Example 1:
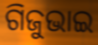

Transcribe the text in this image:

ଗିଜୁଭାଇ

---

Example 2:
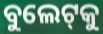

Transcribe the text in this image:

ବୁଲେଟ୍‌କୁ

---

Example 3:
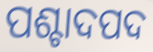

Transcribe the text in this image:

ପଶ୍ଚାଦପଦ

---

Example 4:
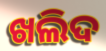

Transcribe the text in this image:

ଖଲିଦ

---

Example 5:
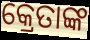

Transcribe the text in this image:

କ୍ରେତାଙ୍କ